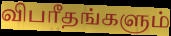
விபரீதங்களும்